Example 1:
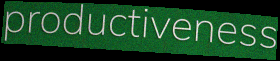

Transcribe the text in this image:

productiveness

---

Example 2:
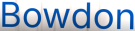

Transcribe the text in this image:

Bowdon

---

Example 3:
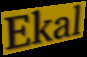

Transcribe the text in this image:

Ekal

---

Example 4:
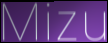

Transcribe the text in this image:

Mizu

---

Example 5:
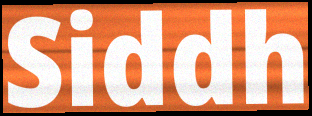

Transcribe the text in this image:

Siddh